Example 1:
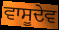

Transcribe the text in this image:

ਵਾਸੂਦੇਵ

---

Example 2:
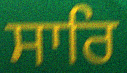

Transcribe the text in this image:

ਸਾਰਿ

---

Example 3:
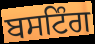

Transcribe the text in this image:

ਬਸਟਿੰਗ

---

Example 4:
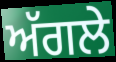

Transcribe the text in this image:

ਅੱਗਲੇ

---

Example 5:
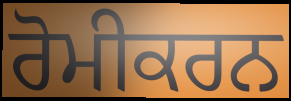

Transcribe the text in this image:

ਰੋਮੀਕਰਨ